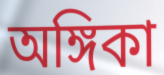
অঙ্গিকা